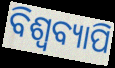
ବିଶ୍ବବ୍ୟାପି